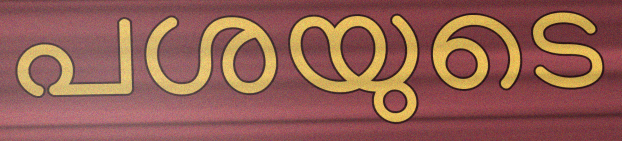
പശയുടെ